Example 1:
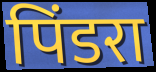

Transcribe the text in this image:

पिंडरा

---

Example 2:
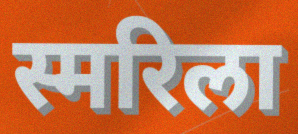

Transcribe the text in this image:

स्मरिला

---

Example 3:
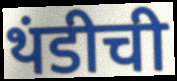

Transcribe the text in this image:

थंडीची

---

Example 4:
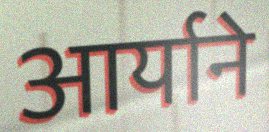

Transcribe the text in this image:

आर्याने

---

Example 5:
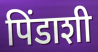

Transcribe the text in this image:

पिंडाशी